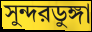
সুন্দরডুঙ্গা